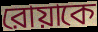
রোয়াকে